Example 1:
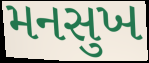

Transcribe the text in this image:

મનસુખ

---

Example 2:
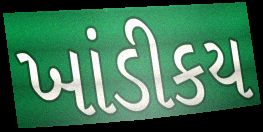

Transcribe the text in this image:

ખાંડીકય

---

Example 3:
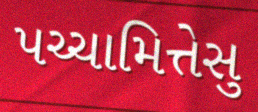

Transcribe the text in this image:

પચ્ચામિત્તેસુ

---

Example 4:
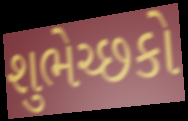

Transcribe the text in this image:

શુભેચ્છકો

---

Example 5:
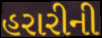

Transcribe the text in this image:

હરારીની